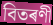
বিতৰণী